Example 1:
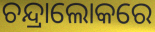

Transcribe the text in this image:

ଚନ୍ଦ୍ରାଲୋକରେ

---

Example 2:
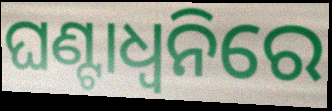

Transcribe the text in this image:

ଘଣ୍ଟାଧ୍ୱନିରେ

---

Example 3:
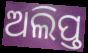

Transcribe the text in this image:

ଅଲିପ୍ତ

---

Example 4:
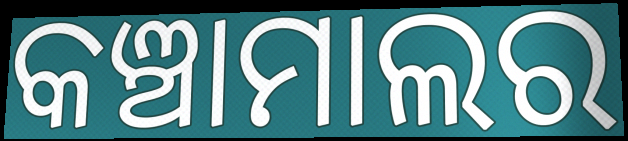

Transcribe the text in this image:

କଞ୍ଚାମାଲର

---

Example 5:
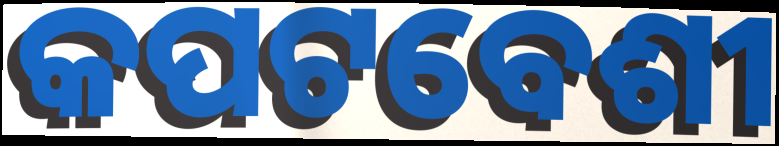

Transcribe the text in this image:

କପଟବେଶୀ